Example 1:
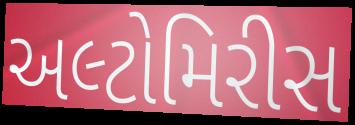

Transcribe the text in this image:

અલ્ટોમિરીસ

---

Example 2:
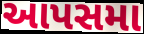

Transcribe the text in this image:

આપસમા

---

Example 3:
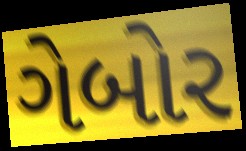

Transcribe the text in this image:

ગેબોર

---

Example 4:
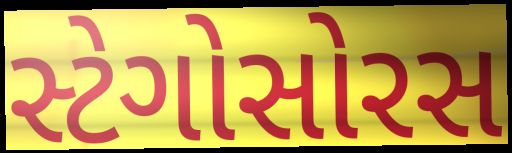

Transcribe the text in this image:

સ્ટેગોસોરસ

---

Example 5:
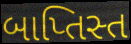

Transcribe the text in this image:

બાપ્તિસ્ત